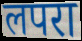
लपरा